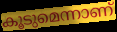
കൂടുമെന്നാണ്